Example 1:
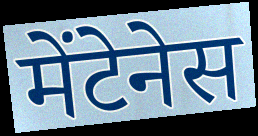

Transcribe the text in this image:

मेंटेनेस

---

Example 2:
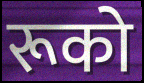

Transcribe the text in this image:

रूको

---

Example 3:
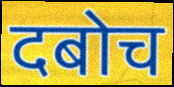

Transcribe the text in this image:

दबोच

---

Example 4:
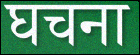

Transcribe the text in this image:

घचना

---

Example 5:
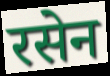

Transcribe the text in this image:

रसेन